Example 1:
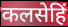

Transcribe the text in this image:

कलसेहिं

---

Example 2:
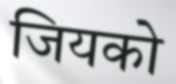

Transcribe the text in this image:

जियको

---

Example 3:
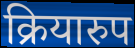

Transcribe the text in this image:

क्रियारुप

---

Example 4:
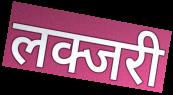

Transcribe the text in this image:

लक्जरी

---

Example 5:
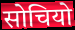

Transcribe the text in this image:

सोचियो